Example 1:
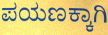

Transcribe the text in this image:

ಪಯಣಕ್ಕಾಗಿ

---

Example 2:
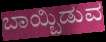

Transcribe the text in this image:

ಬಾಯ್ಬಿಡುವ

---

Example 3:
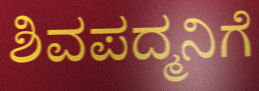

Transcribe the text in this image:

ಶಿವಪದ್ಮನಿಗೆ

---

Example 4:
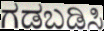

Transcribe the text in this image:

ಗಡಬಡಿಸಿ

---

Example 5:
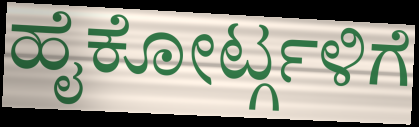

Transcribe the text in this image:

ಹೈಕೋರ್ಟ್ಗಳಿಗೆ